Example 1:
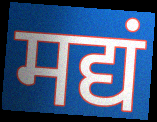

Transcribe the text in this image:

मद्यं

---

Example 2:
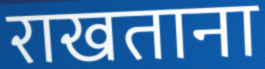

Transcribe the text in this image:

राखताना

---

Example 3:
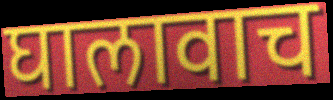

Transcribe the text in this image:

घालावाच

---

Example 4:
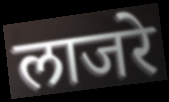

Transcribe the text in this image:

लाजरे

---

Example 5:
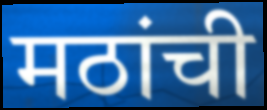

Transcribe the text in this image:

मठांची